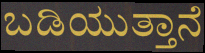
ಬಡಿಯುತ್ತಾನೆ